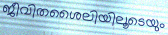
ജീവിതശൈലിയിലൂടെയും